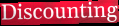
Discounting